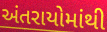
અંતરાયોમાંથી